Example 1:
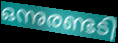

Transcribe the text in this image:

ഒന്നുരണ്ടടി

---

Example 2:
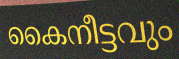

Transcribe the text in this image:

കൈനീട്ടവും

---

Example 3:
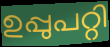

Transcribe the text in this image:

ഉപ്പുപറ്റി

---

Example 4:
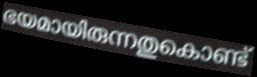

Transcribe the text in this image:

ഭയമായിരുന്നതുകൊണ്ട്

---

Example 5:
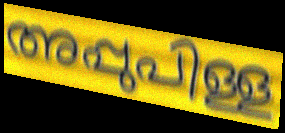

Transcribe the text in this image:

അപ്പുപിള്ള